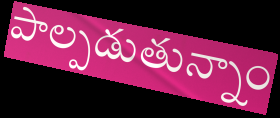
పాల్పడుతున్నాం